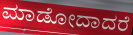
ಮಾಡೋದಾದರೆ